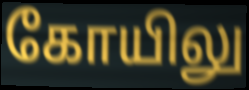
கோயிலு